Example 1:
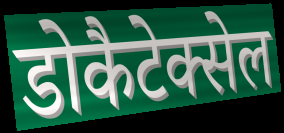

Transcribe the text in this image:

डोकैटेक्सेल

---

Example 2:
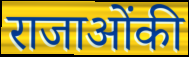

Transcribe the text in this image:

राजाओंकी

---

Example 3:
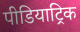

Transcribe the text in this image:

पीडियाट्रिक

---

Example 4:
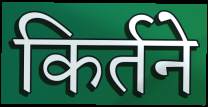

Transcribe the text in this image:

किर्तने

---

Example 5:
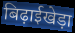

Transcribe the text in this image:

बिढ़ाईखेड़ा